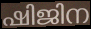
ഷിജിന